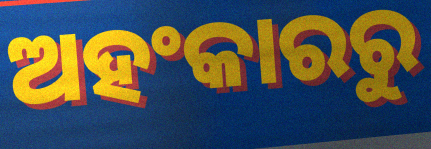
ଅହଂକାରରୁ